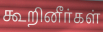
கூறினீர்கள்